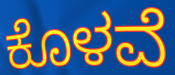
ಕೊಳವೆ